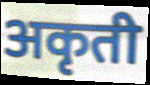
अकृती